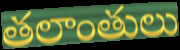
తలాంతులు